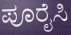
ಪೂರೈಸಿ